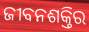
ଜୀବନଶକ୍ତିର